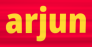
arjun